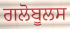
ਗਲੋਬੂਲਸ